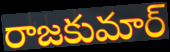
రాజకుమార్